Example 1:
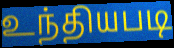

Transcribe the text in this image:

உந்தியபடி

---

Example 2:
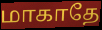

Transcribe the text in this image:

மாகாதே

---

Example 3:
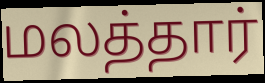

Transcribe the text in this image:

மலத்தார்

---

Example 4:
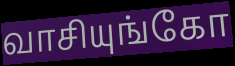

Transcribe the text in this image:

வாசியுங்கோ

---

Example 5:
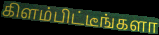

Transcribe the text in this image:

கிளம்பிட்டீங்களா